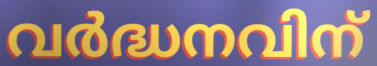
വർദ്ധനവിന്